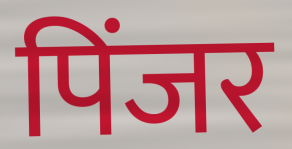
पिंजर